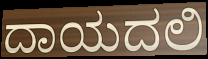
ದಾಯದಲಿ